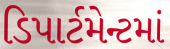
ડિપાર્ટમેન્ટમાં